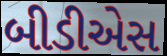
બીડીએસ